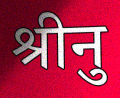
श्रीनु